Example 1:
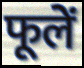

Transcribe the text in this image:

फूलें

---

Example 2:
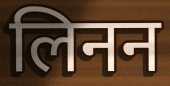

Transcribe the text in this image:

लिनन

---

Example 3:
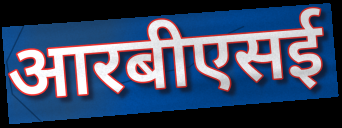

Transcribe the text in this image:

आरबीएसई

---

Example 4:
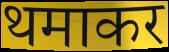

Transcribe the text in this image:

थमाकर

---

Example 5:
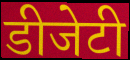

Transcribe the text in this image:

डीजेटी